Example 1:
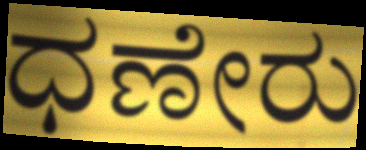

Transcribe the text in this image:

ಧಣೇರು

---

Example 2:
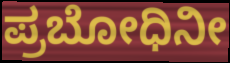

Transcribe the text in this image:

ಪ್ರಬೋಧಿನೀ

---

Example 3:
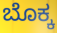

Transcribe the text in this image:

ಬೊಕ್ಕ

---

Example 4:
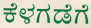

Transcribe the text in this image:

ಕೆಳಗಡೆಗೆ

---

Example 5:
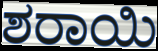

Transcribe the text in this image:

ಶರಾಯಿ